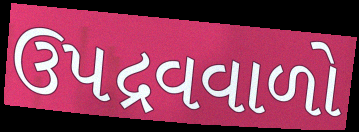
ઉપદ્રવવાળો